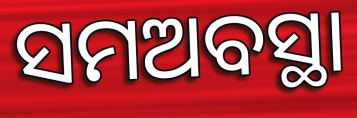
ସମଅବସ୍ଥା